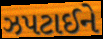
ઝપટાઈને